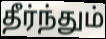
தீர்ந்தும்